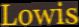
Lowis